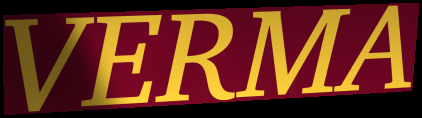
VERMA